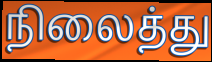
நிலைத்து